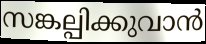
സങ്കല്പിക്കുവാൻ